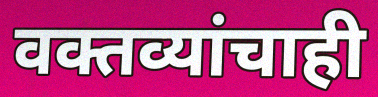
वक्तव्यांचाही